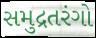
સમુદ્રતરંગો